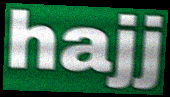
hajj